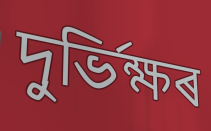
দুৰ্ভিক্ষৰ